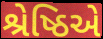
શ્રેષ્ઠિએ